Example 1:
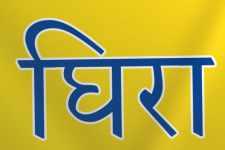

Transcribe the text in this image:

घिरा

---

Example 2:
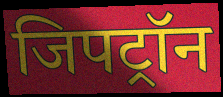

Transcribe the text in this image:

जिपट्रॉन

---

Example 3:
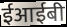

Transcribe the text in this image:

ईआईबी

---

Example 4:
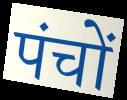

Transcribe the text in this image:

पंचों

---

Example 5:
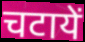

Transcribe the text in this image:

चटायें